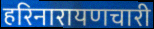
हरिनारायणचारी